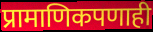
प्रामाणिकपणाही